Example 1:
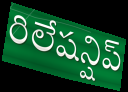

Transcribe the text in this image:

రిలేషన్షిప్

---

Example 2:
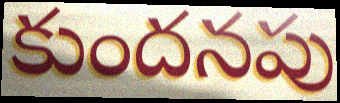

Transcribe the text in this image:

కుందనపు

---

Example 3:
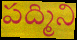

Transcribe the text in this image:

పద్మిని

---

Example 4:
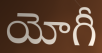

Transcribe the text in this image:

యోగీ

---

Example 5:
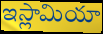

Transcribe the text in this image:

ఇస్లామియా